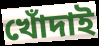
খোঁদাই